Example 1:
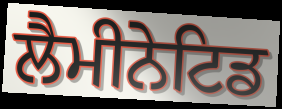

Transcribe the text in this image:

ਲੈਮੀਨੇਟਿਡ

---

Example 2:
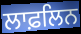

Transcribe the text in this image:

ਲਾਫ਼ਲਿਨ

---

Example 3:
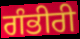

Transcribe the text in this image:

ਗੰਭੀਰੀ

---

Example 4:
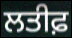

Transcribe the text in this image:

ਲਤੀਫ਼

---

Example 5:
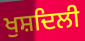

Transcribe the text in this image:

ਖੁਸ਼ਦਿਲੀ